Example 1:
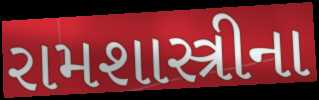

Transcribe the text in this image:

રામશાસ્ત્રીના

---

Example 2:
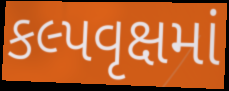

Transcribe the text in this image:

કલ્પવૃક્ષમાં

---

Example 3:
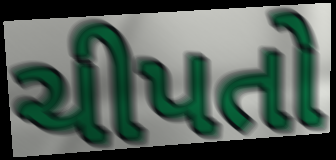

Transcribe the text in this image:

ચીપતો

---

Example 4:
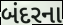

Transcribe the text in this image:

બંદરના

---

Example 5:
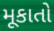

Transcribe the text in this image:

મૂકાતો